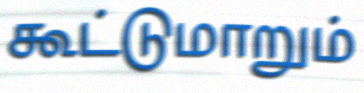
கூட்டுமாறும்